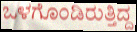
ಒಳಗೊಂಡಿರುತ್ತಿದ್ದ